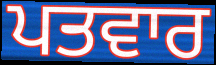
ਪਤਵਾਰ